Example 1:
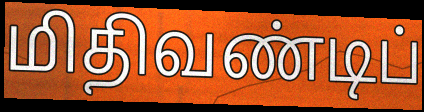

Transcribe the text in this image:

மிதிவண்டிப்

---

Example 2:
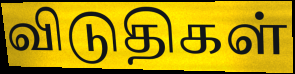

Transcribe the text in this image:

விடுதிகள்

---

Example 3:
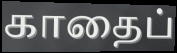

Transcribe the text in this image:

காதைப்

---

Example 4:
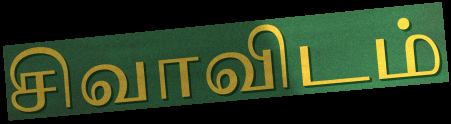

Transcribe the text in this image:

சிவாவிடம்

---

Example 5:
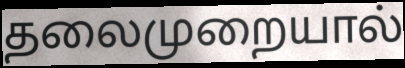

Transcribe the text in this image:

தலைமுறையால்